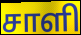
சாளி